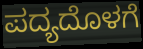
ಪದ್ಯದೊಳಗೆ